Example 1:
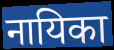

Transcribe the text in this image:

नायिका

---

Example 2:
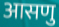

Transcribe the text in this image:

आसणु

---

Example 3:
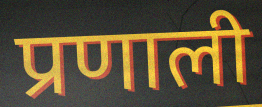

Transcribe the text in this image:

प्रणाली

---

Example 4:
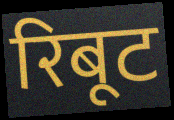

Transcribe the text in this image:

रिबूट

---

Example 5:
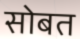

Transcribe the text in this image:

सोबत